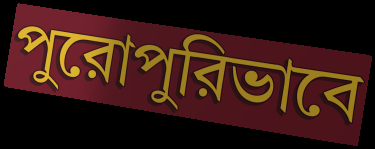
পুরোপুরিভাবে